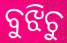
ବୁଝିଚୁ